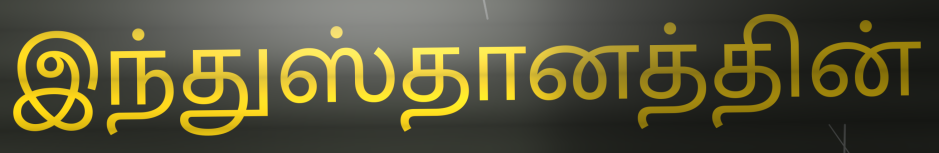
இந்துஸ்தானத்தின்